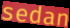
sedan